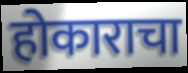
होकाराचा